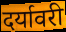
दर्यावरी